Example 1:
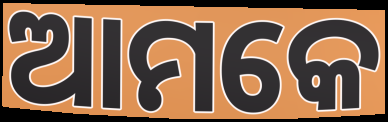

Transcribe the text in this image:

ଆମକେ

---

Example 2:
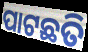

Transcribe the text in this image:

ପାଟଛତି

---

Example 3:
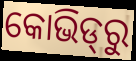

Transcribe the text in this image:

କୋଭିଡ୍‌ରୁ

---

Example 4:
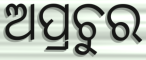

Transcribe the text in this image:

ଅପ୍ରଚୁର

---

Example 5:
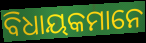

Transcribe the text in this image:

ବିଧାୟକମାନେ